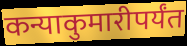
कन्याकुमारीपर्यंत